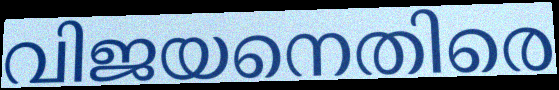
വിജയനെതിരെ